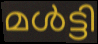
മൾട്ടി